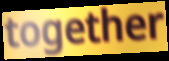
together